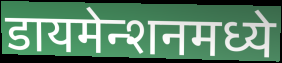
डायमेन्शनमध्ये